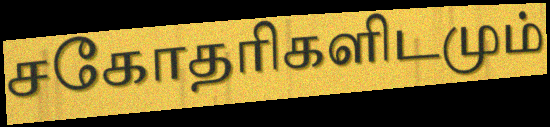
சகோதரிகளிடமும்